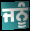
ਜਨੂੰ